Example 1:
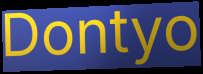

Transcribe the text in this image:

Dontyo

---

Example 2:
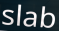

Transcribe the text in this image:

slab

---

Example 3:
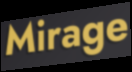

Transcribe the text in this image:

Mirage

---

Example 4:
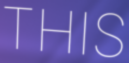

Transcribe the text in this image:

THIS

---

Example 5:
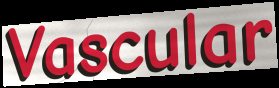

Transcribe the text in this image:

Vascular